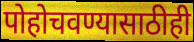
पोहोचवण्यासाठीही